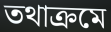
তথাক্ৰমে